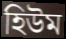
হিউম